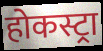
होकस्ट्रा